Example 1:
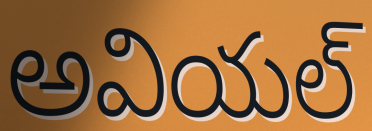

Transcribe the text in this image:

అవియల్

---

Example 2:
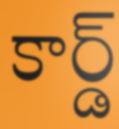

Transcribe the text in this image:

కార్డ్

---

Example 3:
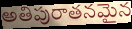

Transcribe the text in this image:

అతిపురాతనమైన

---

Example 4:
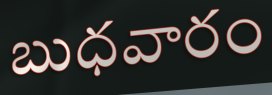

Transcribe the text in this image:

బుధవారం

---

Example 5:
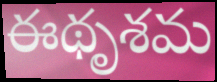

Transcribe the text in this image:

ఈథృశమ